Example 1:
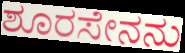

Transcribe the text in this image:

ಶೂರಸೇನನು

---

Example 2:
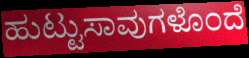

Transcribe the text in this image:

ಹುಟ್ಟುಸಾವುಗಳೊಂದೆ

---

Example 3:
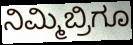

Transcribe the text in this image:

ನಿಮ್ಮಿಬ್ರಿಗೂ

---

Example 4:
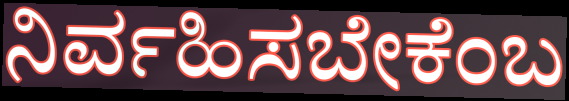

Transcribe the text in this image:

ನಿರ್ವಹಿಸಬೇಕೆಂಬ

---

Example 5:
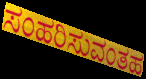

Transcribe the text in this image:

ಸಂಹರಿಸುವಂತಹ